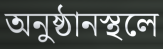
অনুষ্ঠানস্থলে